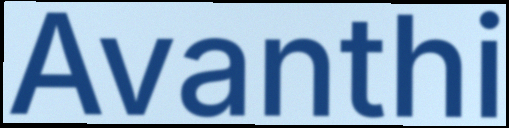
Avanthi